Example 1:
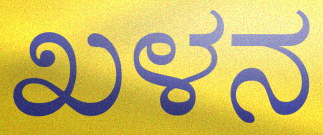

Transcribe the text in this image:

ಖಳನ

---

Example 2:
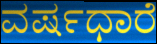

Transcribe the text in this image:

ವರ್ಷಧಾರೆ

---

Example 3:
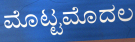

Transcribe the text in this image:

ಮೊಟ್ಟಮೊದಲ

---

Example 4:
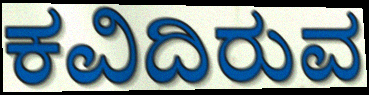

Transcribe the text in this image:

ಕವಿದಿರುವ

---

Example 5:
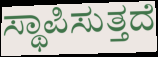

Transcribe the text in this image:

ಸ್ಥಾಪಿಸುತ್ತದೆ